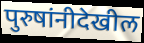
पुरुषांनीदेखील